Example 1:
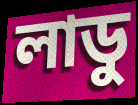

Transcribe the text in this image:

লাডু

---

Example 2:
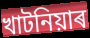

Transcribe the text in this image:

খাটনিয়াৰ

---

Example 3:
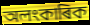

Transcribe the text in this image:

অলংকাৰিক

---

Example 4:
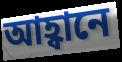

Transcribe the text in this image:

আহ্বানে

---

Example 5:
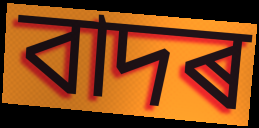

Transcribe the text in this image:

বাদৰ